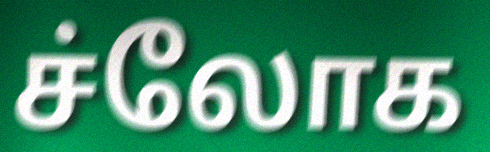
ச்லோக